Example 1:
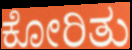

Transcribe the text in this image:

ಕೋರಿತು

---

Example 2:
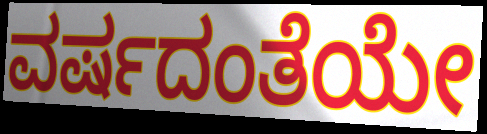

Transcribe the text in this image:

ವರ್ಷದಂತೆಯೇ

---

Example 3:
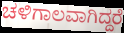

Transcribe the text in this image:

ಚಳಿಗಾಲವಾಗಿದ್ದರೆ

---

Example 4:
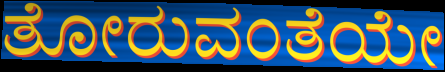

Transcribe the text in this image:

ತೋರುವಂತೆಯೇ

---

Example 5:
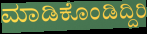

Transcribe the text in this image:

ಮಾಡಿಕೊಂಡಿದ್ದಿರಿ